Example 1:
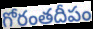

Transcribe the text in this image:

గోరంతదీపం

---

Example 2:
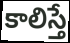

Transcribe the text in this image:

కాలిస్తే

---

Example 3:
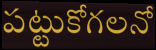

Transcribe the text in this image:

పట్టుకోగలనో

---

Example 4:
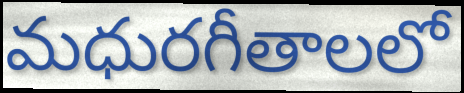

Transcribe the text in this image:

మధురగీతాలలో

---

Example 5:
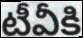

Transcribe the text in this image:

టీవీకి